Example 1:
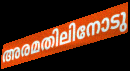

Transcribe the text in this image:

അരമതിലിനോടു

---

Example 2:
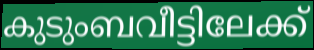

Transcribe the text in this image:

കുടുംബവീട്ടിലേക്ക്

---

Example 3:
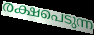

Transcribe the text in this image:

രക്ഷപെടുന്ന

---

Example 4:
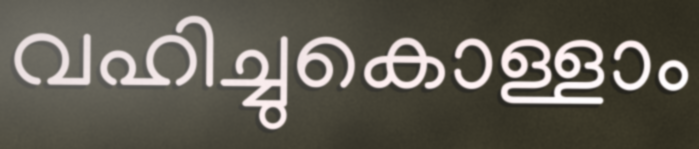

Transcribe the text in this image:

വഹിച്ചുകൊള്ളാം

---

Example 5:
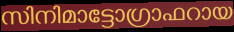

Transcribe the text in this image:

സിനിമാട്ടോഗ്രാഫറായ